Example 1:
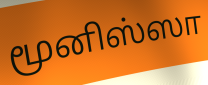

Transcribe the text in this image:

மூனிஸ்ஸா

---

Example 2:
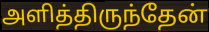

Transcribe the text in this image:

அளித்திருந்தேன்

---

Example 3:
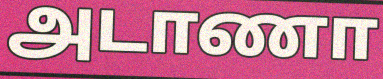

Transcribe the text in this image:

அடாணா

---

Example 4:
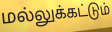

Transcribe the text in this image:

மல்லுக்கட்டும்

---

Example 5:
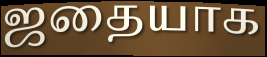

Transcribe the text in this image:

ஜதையாக